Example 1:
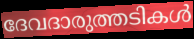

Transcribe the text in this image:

ദേവദാരുത്തടികൾ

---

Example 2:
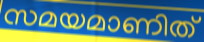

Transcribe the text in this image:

സമയമാണിത്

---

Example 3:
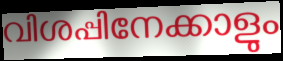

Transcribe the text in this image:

വിശപ്പിനേക്കാളും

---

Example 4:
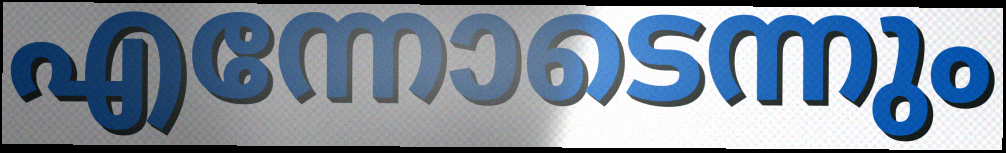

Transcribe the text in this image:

എന്നോടെന്നും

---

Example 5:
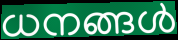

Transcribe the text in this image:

ധനങ്ങൾ